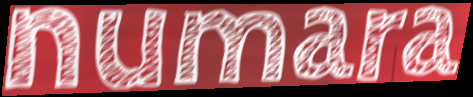
numara